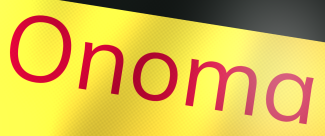
Onoma